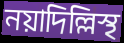
নয়াদিল্লিস্থ